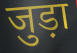
जुड़ा